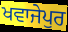
ਖਵਾਜੇਪੁਰ